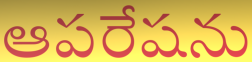
ఆపరేషను